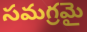
సమగ్రమై